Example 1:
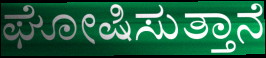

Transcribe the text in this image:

ಘೋಷಿಸುತ್ತಾನೆ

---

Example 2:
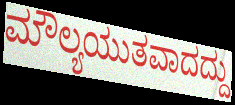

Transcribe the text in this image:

ಮೌಲ್ಯಯುತವಾದದ್ದು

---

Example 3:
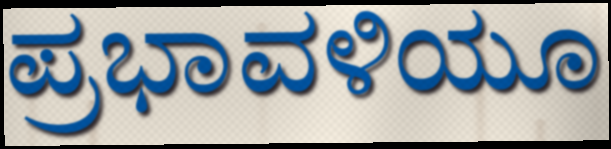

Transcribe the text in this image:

ಪ್ರಭಾವಳಿಯೂ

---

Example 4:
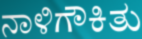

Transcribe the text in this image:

ನಾಳಿಗೌಕಿತು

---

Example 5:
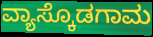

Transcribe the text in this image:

ವ್ಯಾಸ್ಕೊಡಗಾಮ